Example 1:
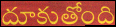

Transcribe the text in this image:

దూకుతోంది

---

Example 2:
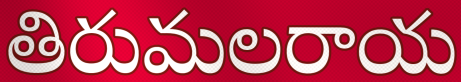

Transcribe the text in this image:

తిరుమలరాయ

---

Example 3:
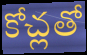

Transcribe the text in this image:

కోచ్లతో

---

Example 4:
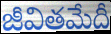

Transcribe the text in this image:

జీవితమేదీ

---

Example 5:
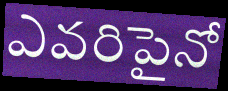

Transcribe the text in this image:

ఎవరిపైనో